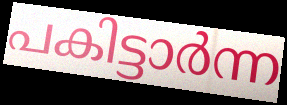
പകിട്ടാർന്ന